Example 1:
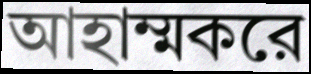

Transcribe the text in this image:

আহাম্মকরে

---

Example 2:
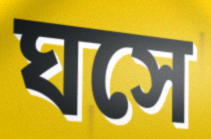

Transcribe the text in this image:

ঘসে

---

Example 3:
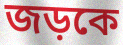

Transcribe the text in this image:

জড়কে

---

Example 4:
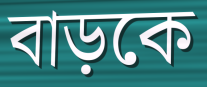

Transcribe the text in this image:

বাড়কে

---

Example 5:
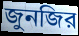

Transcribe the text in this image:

জুনজির